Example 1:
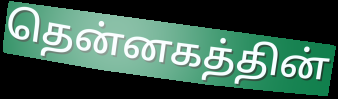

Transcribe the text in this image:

தென்னகத்தின்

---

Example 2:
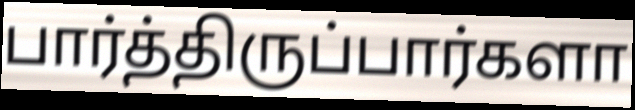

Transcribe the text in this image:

பார்த்திருப்பார்களா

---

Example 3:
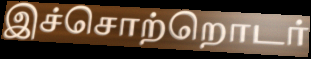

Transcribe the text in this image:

இச்சொற்றொடர்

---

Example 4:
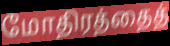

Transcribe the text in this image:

மோதிரத்தைத்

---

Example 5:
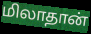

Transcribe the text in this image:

மிலாதான்